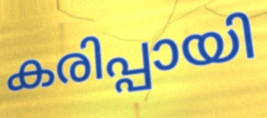
കരിപ്പായി